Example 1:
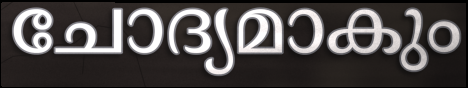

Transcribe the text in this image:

ചോദ്യമാകും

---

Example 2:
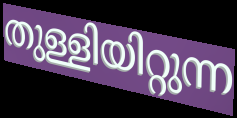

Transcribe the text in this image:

തുള്ളിയിറ്റുന്ന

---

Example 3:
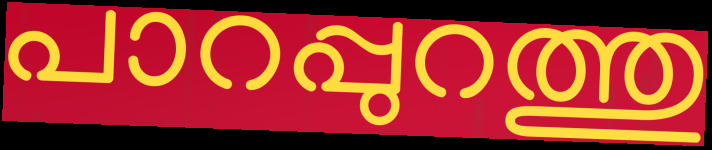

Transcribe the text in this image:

പാറപ്പുറത്തു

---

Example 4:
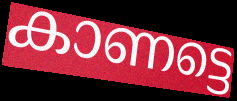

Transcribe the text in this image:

കാണട്ടെ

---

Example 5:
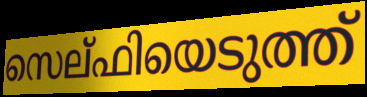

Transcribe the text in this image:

സെല്ഫിയെടുത്ത്